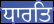
ਧਾਰਤਿ